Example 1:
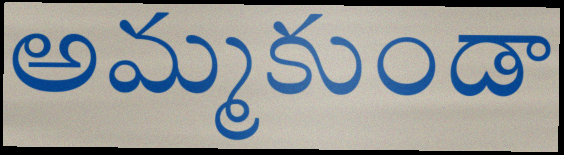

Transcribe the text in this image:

అమ్మకుండా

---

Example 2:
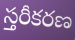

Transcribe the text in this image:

స్తరీకరణ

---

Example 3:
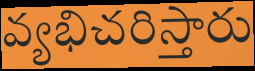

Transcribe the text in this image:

వ్యభిచరిస్తారు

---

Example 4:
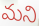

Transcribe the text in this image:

మని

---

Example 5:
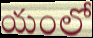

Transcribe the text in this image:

యంలో